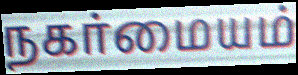
நகர்மையம்